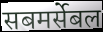
सबमर्सेबल